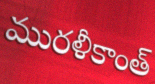
మురళీకాంత్